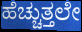
ಹೆಚ್ಚುತ್ತಲೇ